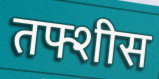
तफ्शीस